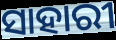
ସାହାରୀ